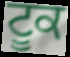
ਟੂਕ